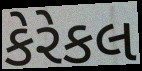
કેરેકલ